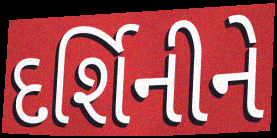
દર્શિનીને